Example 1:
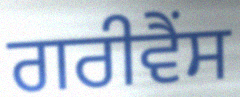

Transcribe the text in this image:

ਗਰੀਵੈਂਸ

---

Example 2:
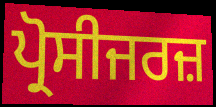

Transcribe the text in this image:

ਪ੍ਰੋਸੀਜਰਜ਼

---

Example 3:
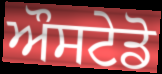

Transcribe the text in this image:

ਔਸਟੇਡੋ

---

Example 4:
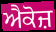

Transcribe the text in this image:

ਐਕੋਜ਼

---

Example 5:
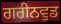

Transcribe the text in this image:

ਗਰੀਨਵੁਡ